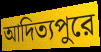
আদিত্যপুরে